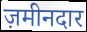
ज़मीनदार